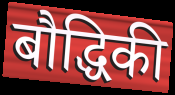
बौद्धिकी